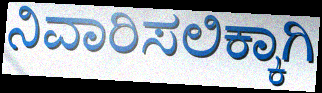
ನಿವಾರಿಸಲಿಕ್ಕಾಗಿ